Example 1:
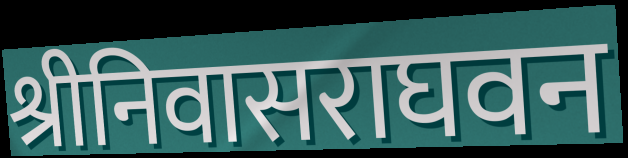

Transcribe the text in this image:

श्रीनिवासराघवन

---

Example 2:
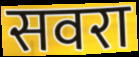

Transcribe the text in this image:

सवरा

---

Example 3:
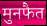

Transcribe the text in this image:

मुनफैत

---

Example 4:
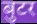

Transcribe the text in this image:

बुटर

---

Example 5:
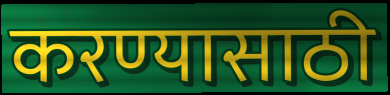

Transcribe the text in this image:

करण्यासाठी